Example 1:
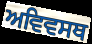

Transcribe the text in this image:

ਅਵਿਵਸਥ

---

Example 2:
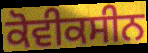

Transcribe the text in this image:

ਕੋਵੀਕਸੀਨ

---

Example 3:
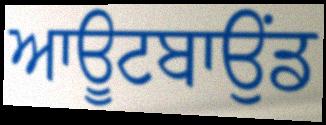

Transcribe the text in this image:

ਆਊਟਬਾਉਂਡ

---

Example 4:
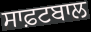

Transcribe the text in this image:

ਸਾਫ਼ਟਬਾਲ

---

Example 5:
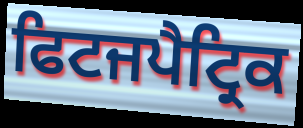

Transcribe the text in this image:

ਫਿਟਜਪੈਟ੍ਰਿਕ